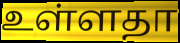
உள்ளதா